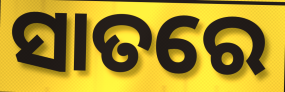
ସାତରେ